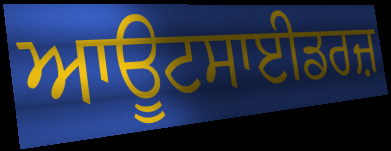
ਆਊਟਸਾਈਡਰਜ਼